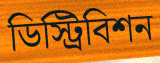
ডিস্ট্রিবিশন